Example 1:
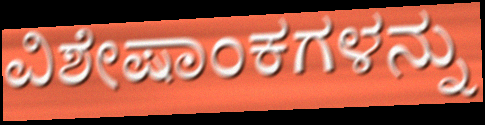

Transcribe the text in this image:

ವಿಶೇಷಾಂಕಗಳನ್ನು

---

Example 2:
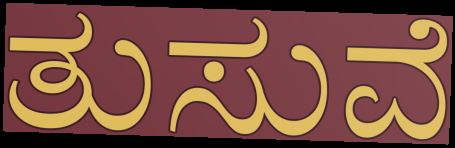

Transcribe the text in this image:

ತುಸುವೆ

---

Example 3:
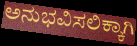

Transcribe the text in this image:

ಅನುಭವಿಸಲಿಕ್ಕಾಗಿ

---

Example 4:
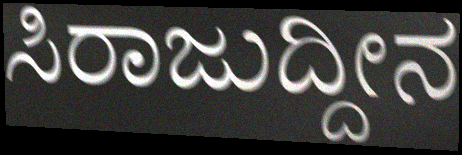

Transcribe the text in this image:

ಸಿರಾಜುದ್ದೀನ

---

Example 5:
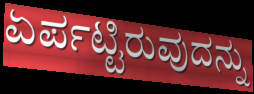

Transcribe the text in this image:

ಏರ್ಪಟ್ಟಿರುವುದನ್ನು